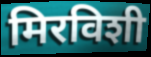
मिरविशी